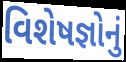
વિશેષજ્ઞોનું